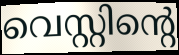
വെസ്റ്റിന്റെ